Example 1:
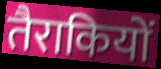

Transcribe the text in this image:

तैराकियों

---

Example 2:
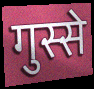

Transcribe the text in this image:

गुस्से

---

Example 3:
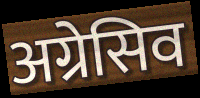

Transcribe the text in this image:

अग्रेसिव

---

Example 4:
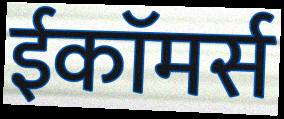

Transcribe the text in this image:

ईकॉमर्स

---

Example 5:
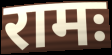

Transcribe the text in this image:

रामः